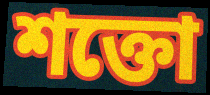
শক্তো